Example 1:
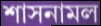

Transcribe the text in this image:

শাসনামল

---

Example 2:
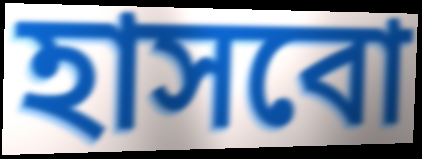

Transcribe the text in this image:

হাসবো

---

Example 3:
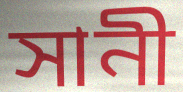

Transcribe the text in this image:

সানী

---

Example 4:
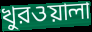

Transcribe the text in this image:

খুরওয়ালা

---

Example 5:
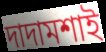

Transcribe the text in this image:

দাদামশাই